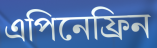
এপিনেফ্রিন